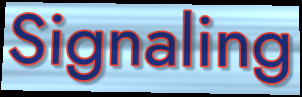
Signaling